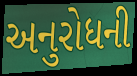
અનુરોધની